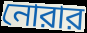
নোরার